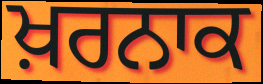
ਖ਼ਰਨਾਕ